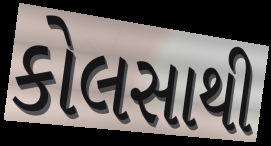
કોલસાથી